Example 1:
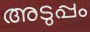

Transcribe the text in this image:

അടുപ്പം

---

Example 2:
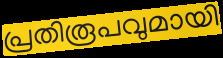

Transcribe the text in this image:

പ്രതിരൂപവുമായി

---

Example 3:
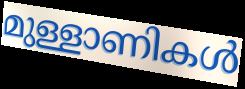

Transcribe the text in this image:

മുള്ളാണികൾ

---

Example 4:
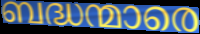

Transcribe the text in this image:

ബദ്ധന്മാരെ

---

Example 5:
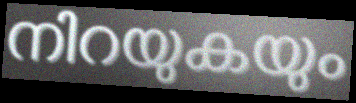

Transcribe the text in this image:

നിറയുകയും